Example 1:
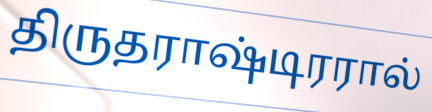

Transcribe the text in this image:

திருதராஷ்டிரரால்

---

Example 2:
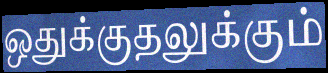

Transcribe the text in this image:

ஒதுக்குதலுக்கும்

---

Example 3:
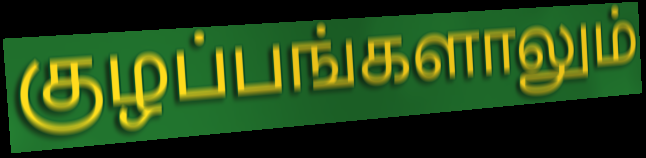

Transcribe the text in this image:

குழப்பங்களாலும்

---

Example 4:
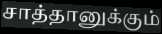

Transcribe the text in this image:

சாத்தானுக்கும்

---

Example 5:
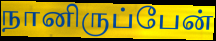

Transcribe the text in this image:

நானிருப்பேன்